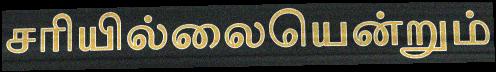
சரியில்லையென்றும்